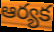
ఆర్యక